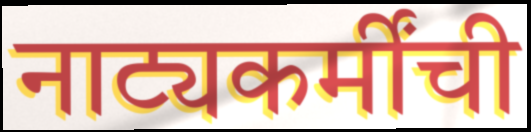
नाट्यकर्मींची